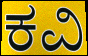
ಕವಿ